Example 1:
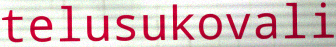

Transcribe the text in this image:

telusukovali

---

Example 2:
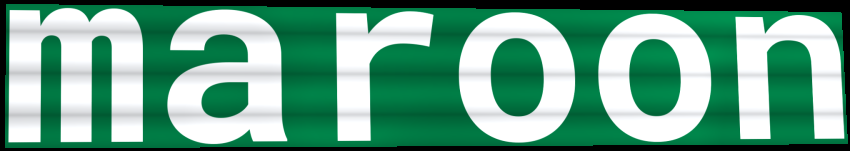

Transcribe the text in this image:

maroon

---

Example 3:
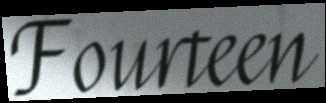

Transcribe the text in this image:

Fourteen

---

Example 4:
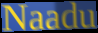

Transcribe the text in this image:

Naadu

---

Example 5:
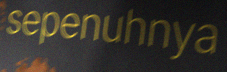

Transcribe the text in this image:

sepenuhnya